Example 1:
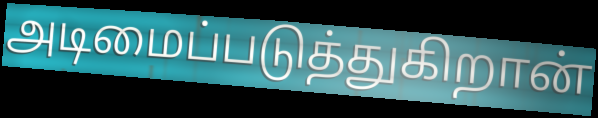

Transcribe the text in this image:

அடிமைப்படுத்துகிறான்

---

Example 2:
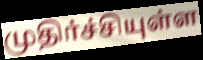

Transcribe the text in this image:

முதிர்ச்சியுள்ள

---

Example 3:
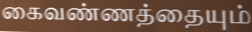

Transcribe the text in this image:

கைவண்ணத்தையும்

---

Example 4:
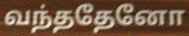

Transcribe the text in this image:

வந்ததேனோ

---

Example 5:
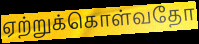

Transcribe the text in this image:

ஏற்றுக்கொள்வதோ